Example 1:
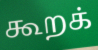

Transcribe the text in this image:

கூறக்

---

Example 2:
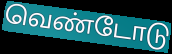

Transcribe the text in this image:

வெண்டோடு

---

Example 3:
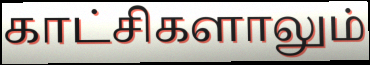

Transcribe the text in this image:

காட்சிகளாலும்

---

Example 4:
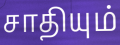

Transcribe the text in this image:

சாதியும்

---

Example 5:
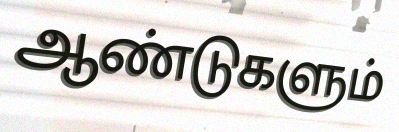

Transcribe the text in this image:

ஆண்டுகளும்